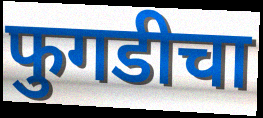
फुगडीचा